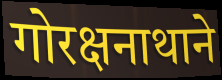
गोरक्षनाथाने